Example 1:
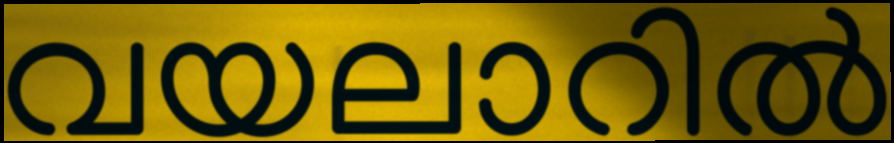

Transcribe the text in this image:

വയലാറിൽ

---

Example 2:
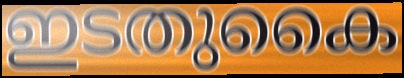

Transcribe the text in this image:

ഇടതുകൈ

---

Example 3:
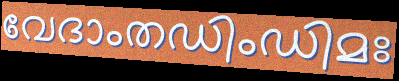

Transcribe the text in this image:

വേദാംതഡിംഡിമഃ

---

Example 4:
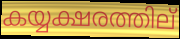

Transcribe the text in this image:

കയ്യക്ഷരത്തില്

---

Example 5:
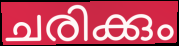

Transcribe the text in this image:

ചരിക്കും